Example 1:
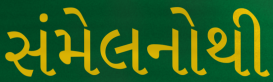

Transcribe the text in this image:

સંમેલનોથી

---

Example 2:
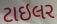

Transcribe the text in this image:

ટાઇલર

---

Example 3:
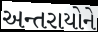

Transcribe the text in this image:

અન્તરાયોને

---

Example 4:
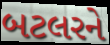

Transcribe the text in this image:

બટલરને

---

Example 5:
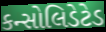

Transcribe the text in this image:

કન્સોલિડેટેડ